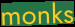
monks